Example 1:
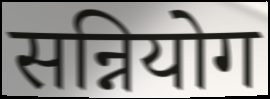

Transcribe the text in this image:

सन्नियोग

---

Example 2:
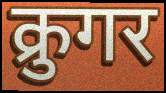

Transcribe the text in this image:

क्रुगर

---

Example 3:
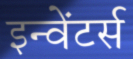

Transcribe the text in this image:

इन्वेंटर्स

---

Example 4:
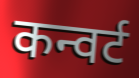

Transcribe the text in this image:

कन्वर्ट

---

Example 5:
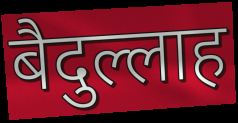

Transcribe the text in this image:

बैदुल्लाह